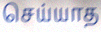
செய்யாத